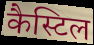
कैस्टिल